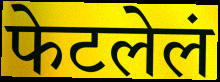
फेटलेलं